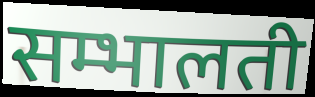
सम्भालती